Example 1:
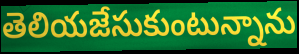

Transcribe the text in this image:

తెలియజేసుకుంటున్నాను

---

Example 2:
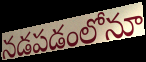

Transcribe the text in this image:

నడపడంలోనూ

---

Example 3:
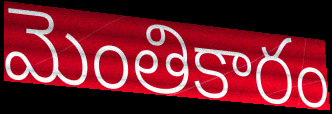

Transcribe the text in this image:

మెంతికారం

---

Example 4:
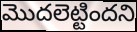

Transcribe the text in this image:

మొదలెట్టిందని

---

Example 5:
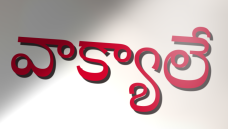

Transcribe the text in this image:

వాక్యాలే